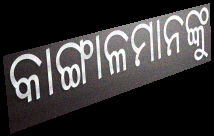
କାଙ୍ଗାଳମାନଙ୍କୁ